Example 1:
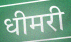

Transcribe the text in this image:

धीमरी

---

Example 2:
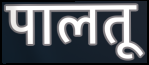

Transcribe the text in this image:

पालतू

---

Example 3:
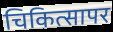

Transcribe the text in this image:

चिकित्सापर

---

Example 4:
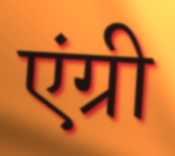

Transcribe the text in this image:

एंग्री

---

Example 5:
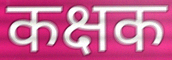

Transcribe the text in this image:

कक्षक